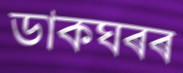
ডাকঘৰৰ